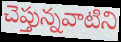
చెప్తున్నవాటిని